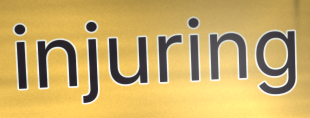
injuring